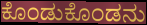
ಕೊಂಡುಕೊಂಡನು